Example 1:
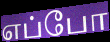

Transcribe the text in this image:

எப்போ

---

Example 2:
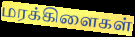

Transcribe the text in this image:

மரக்கிளைகள்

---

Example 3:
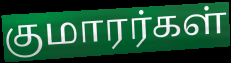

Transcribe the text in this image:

குமாரர்கள்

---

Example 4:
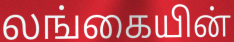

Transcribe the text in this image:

லங்கையின்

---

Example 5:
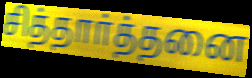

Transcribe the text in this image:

சித்தார்த்தனை